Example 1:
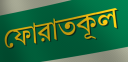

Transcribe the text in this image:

ফোরাতকূল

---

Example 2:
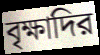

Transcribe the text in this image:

বৃক্ষাদির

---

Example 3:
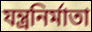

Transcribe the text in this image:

যন্ত্রনির্মাতা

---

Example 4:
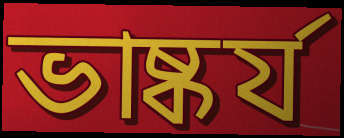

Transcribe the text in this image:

ভাষ্কর্য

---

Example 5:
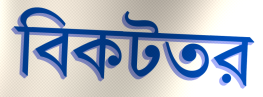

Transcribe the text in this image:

বিকটতর